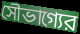
সৌভাগ্যের